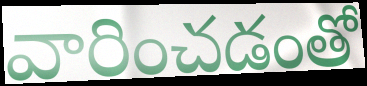
వారించడంతో